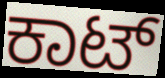
ಕಾಟ್